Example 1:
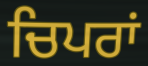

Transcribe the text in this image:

ਚਿਪਰਾਂ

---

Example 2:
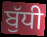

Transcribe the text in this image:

ਬੁੱਧੀ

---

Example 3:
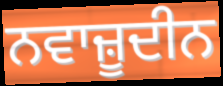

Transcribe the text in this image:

ਨਵਾਜ਼ੂਦੀਨ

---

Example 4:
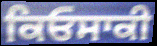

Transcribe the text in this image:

ਕਿਓਸਾਕੀ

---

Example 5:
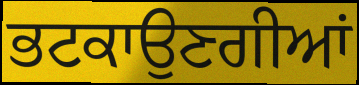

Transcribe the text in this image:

ਭਟਕਾਉਣਗੀਆਂ